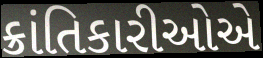
ક્રાંતિકારીઓએ